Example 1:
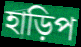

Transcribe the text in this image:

হাড়িপ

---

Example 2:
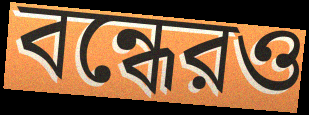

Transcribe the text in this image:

বন্ধেরও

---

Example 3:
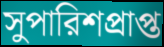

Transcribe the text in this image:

সুপারিশপ্রাপ্ত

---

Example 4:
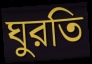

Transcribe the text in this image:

ঘুরতি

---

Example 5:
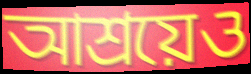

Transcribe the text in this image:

আশ্রয়েও